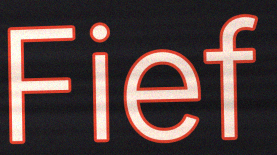
Fief